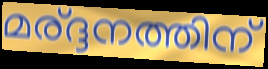
മര്ദ്ദനത്തിന്